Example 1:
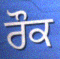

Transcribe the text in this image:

ਰੌਕ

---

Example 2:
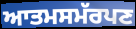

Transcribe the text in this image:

ਆਤਮਸਮੱਰਪਣ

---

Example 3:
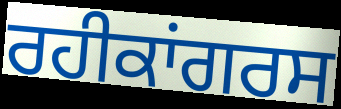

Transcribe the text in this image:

ਰਹੀਕਾਂਗਰਸ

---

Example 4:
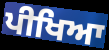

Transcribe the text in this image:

ਪੀਖਿਆ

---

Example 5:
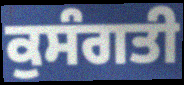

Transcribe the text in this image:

ਕੁਸੰਗਤੀ